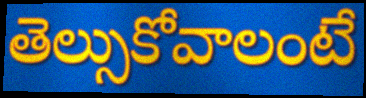
తెల్సుకోవాలంటే